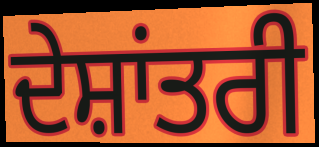
ਦੇਸ਼ਾਂਤਰੀ